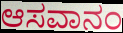
ಆಸವಾನಂ